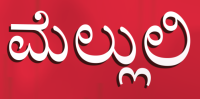
ಮೆಲ್ಲುಲಿ